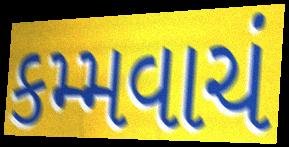
કમ્મવાચં